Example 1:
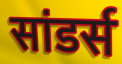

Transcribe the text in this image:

सांडर्स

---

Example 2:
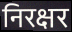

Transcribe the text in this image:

निरक्षर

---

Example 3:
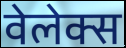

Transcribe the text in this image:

वेलेक्स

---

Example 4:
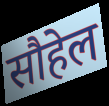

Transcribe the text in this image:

सौहेल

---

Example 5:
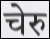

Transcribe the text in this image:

चेरु